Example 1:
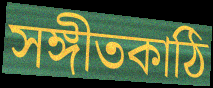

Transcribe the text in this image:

সঙ্গীতকাঠি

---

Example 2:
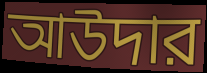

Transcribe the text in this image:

আউদার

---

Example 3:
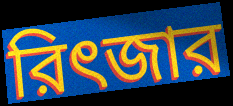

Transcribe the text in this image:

রিৎজার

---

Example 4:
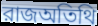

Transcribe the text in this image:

রাজঅতিথি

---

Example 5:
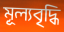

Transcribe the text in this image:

মূল্যবৃদ্ধি